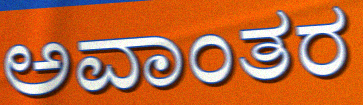
ಅವಾಂತರ